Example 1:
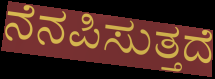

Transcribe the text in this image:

ನೆನಪಿಸುತ್ತದೆ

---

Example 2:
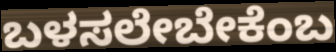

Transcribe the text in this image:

ಬಳಸಲೇಬೇಕೆಂಬ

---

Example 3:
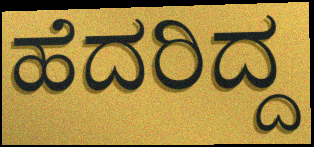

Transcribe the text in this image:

ಹೆದರಿದ್ದ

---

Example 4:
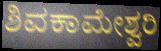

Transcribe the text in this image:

ಶಿವಕಾಮೇಶ್ವರಿ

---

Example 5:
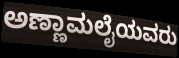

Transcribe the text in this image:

ಅಣ್ಣಾಮಲೈಯವರು